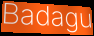
Badagu